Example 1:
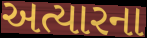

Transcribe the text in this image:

અત્યારના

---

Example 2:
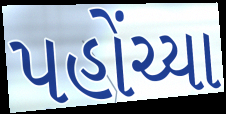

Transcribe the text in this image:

પહોંચ્યા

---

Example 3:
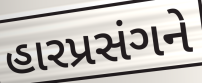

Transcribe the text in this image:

હારપ્રસંગને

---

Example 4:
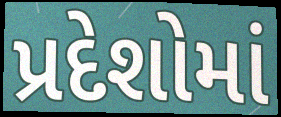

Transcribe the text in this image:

પ્રદેશોમાં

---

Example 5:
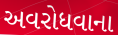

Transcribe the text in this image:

અવરોધવાના